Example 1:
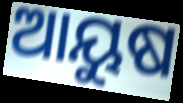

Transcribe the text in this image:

ଆୟୁଷ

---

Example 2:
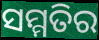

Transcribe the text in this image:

ସମ୍ମତିର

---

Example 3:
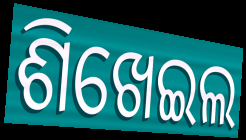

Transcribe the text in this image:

ଶିଖେଇଲ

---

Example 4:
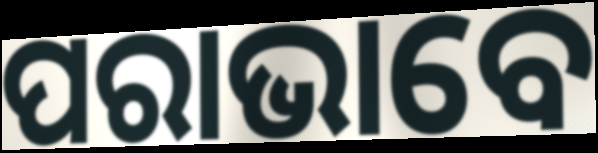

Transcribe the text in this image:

ପରାଭାବେ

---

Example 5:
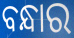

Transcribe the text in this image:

ବନ୍ଧାର